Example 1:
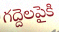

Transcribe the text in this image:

గద్దెలపైకి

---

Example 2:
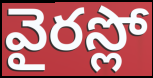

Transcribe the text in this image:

వైరస్లో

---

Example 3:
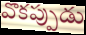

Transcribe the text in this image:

వొకప్పుడు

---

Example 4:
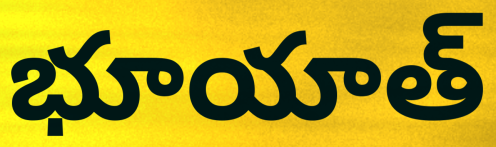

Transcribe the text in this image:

భూయాత్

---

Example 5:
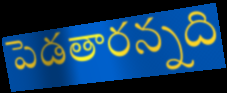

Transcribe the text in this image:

పెడతారన్నది